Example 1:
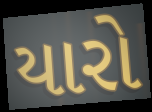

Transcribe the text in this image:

યારો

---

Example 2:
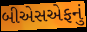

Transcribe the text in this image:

બીએસએફનું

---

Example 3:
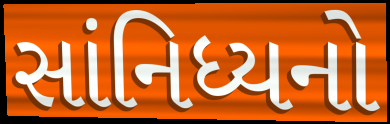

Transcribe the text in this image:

સાંનિધ્યનો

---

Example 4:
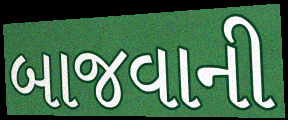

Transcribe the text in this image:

બાજવાની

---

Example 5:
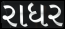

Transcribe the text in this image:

રાધર